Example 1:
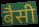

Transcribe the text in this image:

बैसी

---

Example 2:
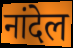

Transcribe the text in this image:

नांदेल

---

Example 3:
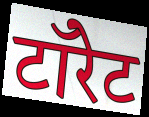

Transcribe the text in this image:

टॉरेट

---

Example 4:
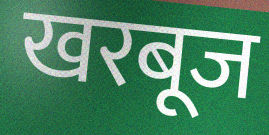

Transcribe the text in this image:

खरबूज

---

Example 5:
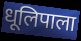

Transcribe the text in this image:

धूलिपाला